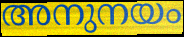
അനുനയം